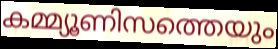
കമ്മ്യൂണിസത്തെയും